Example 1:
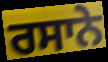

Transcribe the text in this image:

ਰਸਾਨੇ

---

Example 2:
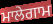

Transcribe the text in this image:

ਮਾਲੇਗਾਮ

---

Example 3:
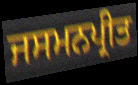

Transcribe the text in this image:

ਜਸਮਨਪ੍ਰੀਤ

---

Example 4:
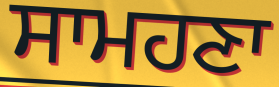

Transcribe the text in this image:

ਸਾਮਹਣਾ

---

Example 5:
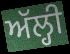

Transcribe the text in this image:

ਅੱਲ੍ਹੀ